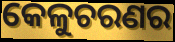
କେଳୁଚରଣର